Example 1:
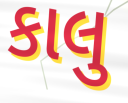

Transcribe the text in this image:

કાલુ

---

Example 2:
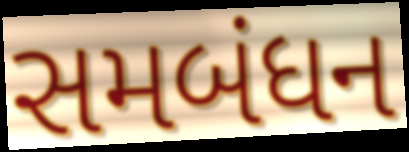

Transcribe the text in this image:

સમબંધન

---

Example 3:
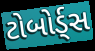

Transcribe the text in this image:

ટોબોર્ડ્સ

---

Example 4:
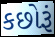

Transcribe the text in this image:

કછોરૂં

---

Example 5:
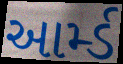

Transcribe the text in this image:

આર્મ્ડ